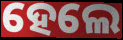
ହେଲେ